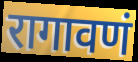
रागावणं